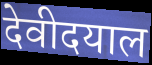
देवीदयाल